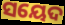
ସୟେଦ